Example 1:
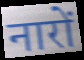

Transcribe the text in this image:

नारों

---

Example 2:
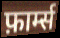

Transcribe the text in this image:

फ़ार्म्स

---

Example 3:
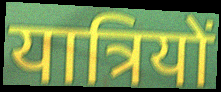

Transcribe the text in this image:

यात्रियों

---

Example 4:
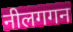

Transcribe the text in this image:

नीलगगन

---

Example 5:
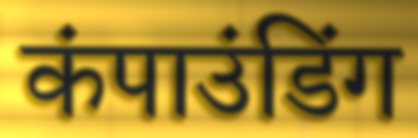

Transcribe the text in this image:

कंपाउंडिंग